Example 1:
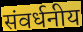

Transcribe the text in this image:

संवर्धनीय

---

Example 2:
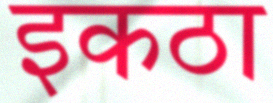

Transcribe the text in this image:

इकठा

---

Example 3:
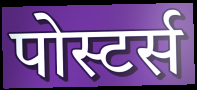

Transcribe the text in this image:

पोस्टर्स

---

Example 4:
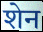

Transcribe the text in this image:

शेन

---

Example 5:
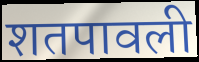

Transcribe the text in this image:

शतपावली